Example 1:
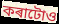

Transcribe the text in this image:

কৰাটোও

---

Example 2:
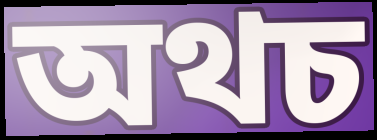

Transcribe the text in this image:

অথচ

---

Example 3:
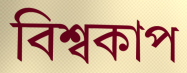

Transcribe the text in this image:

বিশ্বকাপ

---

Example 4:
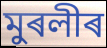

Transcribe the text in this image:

মুৰলীৰ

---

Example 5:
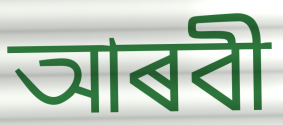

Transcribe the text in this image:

আৰবী